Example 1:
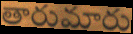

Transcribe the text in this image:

తారుమారు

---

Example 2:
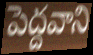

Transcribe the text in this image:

పెద్దవాని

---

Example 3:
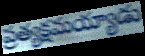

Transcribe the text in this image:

ప్రత్యక్షమయ్యాడు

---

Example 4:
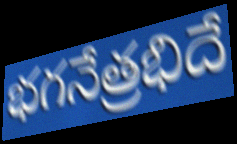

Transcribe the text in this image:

భగనేత్రభిదే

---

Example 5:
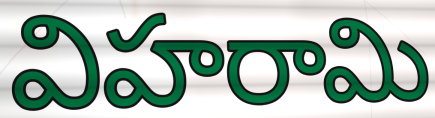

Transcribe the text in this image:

విహరామి